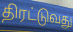
திரட்டுவது